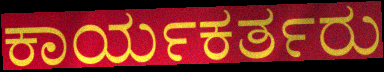
ಕಾರ್ಯಕರ್ತರು